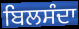
ਬਿਲਸੰਦਾ